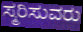
ಸ್ಮರಿಸುವರು